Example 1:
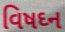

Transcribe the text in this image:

વિષઘ્ન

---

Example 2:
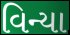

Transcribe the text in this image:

વિન્યા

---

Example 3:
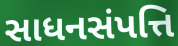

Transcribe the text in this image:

સાધનસંપત્તિ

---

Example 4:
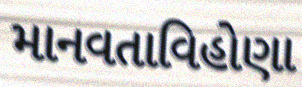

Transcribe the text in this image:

માનવતાવિહોણા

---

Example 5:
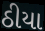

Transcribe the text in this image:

ઠીયા